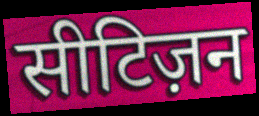
सीटिज़न